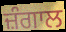
ਜ਼ੰਗਾਲ